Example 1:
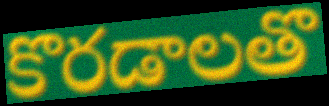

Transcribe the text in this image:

కొరడాలతొ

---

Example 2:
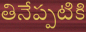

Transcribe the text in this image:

తినేప్పటికి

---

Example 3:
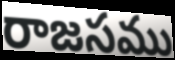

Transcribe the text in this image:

రాజసము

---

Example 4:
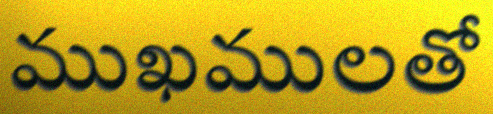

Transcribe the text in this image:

ముఖములతో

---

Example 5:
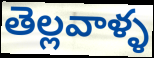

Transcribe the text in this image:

తెల్లవాళ్ళ